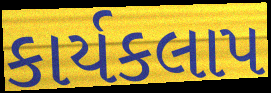
કાર્યકલાપ